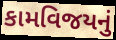
કામવિજયનું